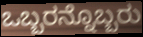
ಒಬ್ಬರನ್ನೊಬ್ಬರು